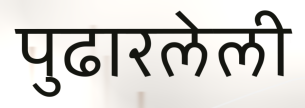
पुढारलेली